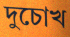
দুচোখ